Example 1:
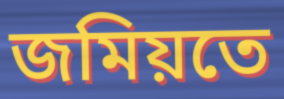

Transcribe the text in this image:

জমিয়তে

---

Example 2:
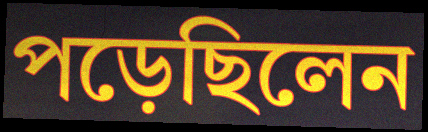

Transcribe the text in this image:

পড়েছিলেন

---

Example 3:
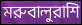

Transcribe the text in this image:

মরুবালুরাশি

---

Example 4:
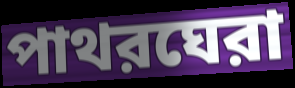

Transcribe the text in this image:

পাথরঘেরা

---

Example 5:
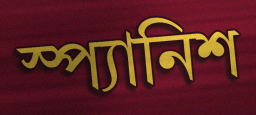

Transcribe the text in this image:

স্প্যানিশ